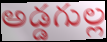
అడ్డగుల్ల